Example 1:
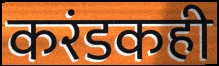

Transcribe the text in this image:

करंडकही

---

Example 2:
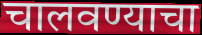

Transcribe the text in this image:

चालवण्याचा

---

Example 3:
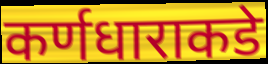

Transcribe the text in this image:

कर्णधाराकडे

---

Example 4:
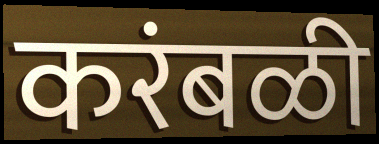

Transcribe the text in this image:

करंबळी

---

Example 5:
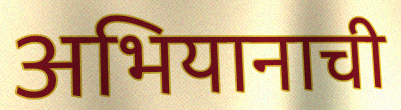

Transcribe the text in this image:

अभियानाची